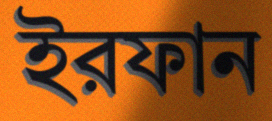
ইরফান